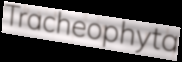
Tracheophyta